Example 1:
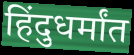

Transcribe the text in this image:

हिंदुधर्मांत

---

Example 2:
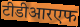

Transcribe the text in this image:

टीडीआरएफ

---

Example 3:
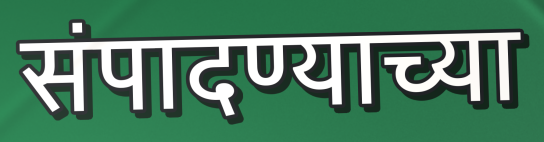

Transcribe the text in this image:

संपादण्याच्या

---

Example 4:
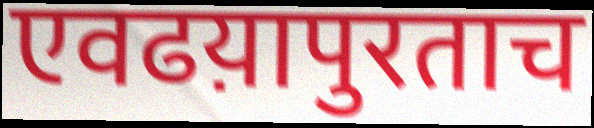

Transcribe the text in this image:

एवढय़ापुरताच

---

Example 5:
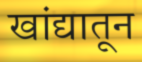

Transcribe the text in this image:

खांद्यातून